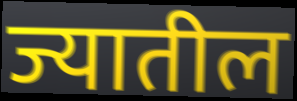
ज्यातील